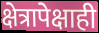
क्षेत्रापेक्षाही